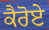
ਕੈਰੋਏ